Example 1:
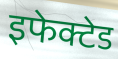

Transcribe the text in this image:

इफेक्टेड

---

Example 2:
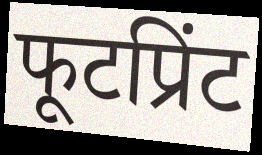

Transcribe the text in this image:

फूटप्रिंट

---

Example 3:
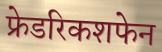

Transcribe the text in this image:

फ्रेडरिकशफेन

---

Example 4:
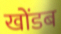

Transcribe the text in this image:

खोंडब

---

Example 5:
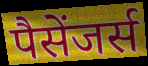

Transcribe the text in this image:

पैसेंजर्स